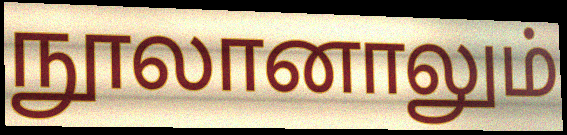
நூலானாலும்